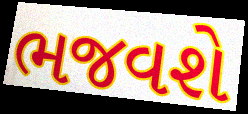
ભજવશે